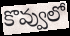
కొవ్వులో